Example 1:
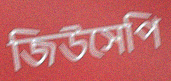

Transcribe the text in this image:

জিউসেপি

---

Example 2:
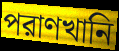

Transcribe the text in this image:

পরাণখানি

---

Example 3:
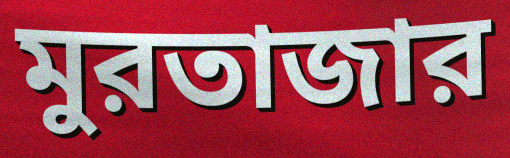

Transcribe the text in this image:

মুরতাজার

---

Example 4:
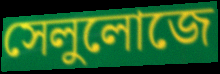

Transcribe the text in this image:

সেলুলোজে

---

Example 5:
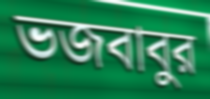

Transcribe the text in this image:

ভজবাবুর